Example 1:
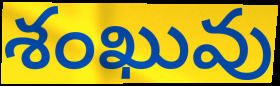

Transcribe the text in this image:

శంఖువు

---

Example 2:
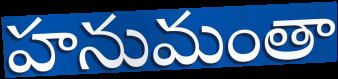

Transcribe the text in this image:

హనుమంతా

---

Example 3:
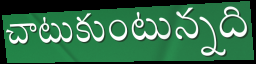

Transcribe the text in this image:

చాటుకుంటున్నది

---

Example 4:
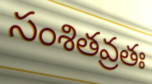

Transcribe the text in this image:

సంశితవ్రతః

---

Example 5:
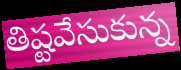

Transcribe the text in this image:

తిష్టవేసుకున్న